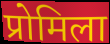
प्रोमिला